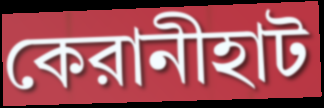
কেরানীহাট